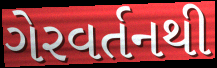
ગેરવર્તનથી